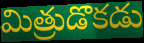
మిత్రుడొకడు